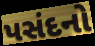
પસંદનો